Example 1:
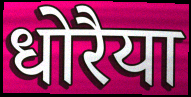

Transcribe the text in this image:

धोरैया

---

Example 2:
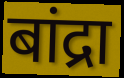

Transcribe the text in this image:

बांद्रा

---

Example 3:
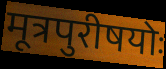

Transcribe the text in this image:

मूत्रपुरीषयोः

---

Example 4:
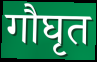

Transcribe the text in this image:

गौघृत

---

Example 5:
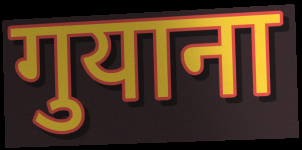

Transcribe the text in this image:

गुयाना